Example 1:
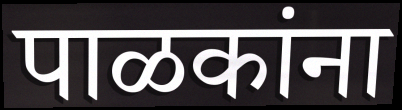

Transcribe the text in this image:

पाळकांना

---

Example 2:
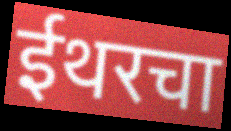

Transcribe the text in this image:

ईथरचा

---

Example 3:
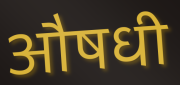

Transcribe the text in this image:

औषधी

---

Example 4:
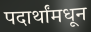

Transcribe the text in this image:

पदार्थांमधून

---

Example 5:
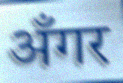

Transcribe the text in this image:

अँगर